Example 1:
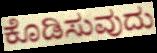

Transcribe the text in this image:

ಕೊಡಿಸುವುದು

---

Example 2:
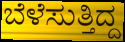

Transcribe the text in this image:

ಬೆಳೆಸುತ್ತಿದ್ದ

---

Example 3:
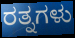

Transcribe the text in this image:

ರತ್ನಗಳು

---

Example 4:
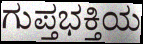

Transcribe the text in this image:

ಗುಪ್ತಭಕ್ತಿಯ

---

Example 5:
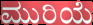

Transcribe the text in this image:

ಮುರಿಯೆ